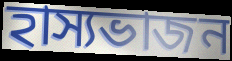
হাস্যভাজন